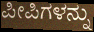
ಪೀಪಿಗಳನ್ನು